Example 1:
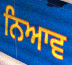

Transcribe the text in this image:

ਨਿਆਵ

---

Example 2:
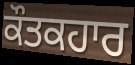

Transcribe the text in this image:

ਕੌਤਕਹਾਰ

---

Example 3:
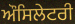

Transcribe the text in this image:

ਔਸਿਲੇਟਰੀ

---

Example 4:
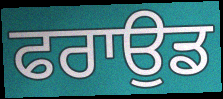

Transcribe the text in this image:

ਫਰਾਉਡ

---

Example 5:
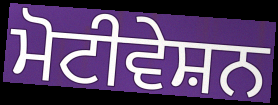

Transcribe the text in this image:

ਮੋਟੀਵੇਸ਼ਨ